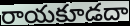
రాయకూడదా